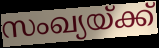
സംഖ്യയ്ക്ക്